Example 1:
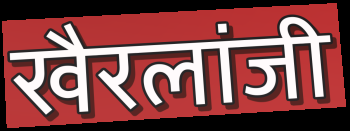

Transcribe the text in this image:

खैरलांजी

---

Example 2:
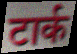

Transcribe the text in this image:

टार्क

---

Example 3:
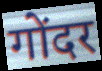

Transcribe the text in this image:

गोंदर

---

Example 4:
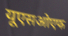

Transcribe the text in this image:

यूएसओएफ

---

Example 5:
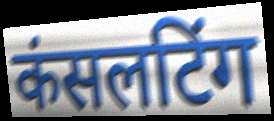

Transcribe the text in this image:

कंसलटिंग